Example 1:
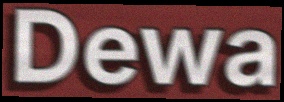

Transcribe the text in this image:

Dewa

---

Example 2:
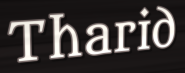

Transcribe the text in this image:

Tharid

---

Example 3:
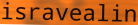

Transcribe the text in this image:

isravealin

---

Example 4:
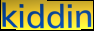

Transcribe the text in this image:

kiddin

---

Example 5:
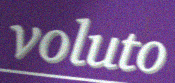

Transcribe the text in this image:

voluto